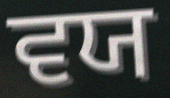
ਵਯ